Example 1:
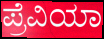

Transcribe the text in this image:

ಪ್ರೆವಿಯಾ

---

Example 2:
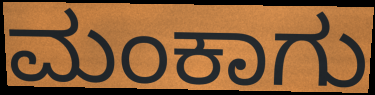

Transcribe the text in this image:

ಮಂಕಾಗು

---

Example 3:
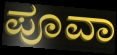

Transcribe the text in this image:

ಪೂವಾ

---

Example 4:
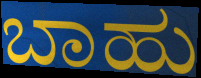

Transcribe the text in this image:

ಬಾಹು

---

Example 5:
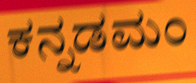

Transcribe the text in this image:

ಕನ್ನಡಮಂ